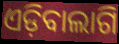
ଏଡ଼ିବାଲାଗି